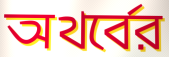
অথর্বের